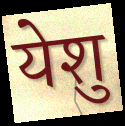
येशु